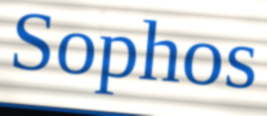
Sophos